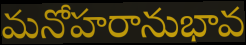
మనోహరానుభావ